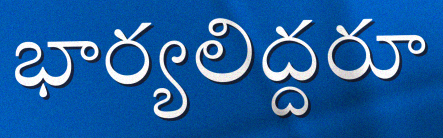
భార్యలిద్దరూ